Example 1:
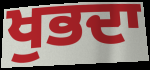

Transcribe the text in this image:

ਖੁਭਦਾ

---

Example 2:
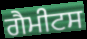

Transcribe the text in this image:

ਗੈਮੀਟਸ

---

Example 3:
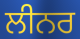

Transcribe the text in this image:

ਲੀਨਰ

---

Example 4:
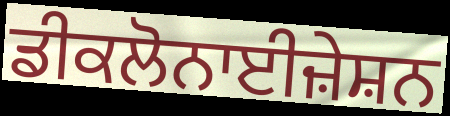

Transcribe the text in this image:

ਡੀਕਲੋਨਾਈਜ਼ੇਸ਼ਨ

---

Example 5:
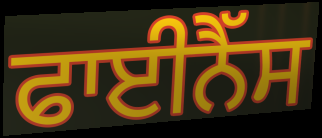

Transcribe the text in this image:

ਫਾਈਨੈੱਸ